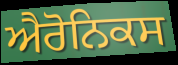
ਐਰੋਨਿਕਸ